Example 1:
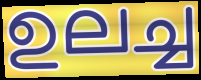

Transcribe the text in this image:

ഉലച്ച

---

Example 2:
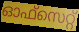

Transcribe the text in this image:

ഓഫ്സെറ്റ്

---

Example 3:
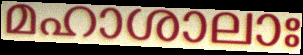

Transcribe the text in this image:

മഹാശാലാഃ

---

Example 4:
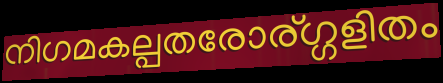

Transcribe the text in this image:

നിഗമകല്പതരോര്ഗ്ഗളിതം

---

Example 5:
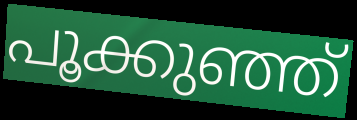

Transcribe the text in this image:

പൂക്കുഞ്ഞ്